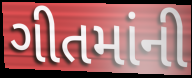
ગીતમાંની